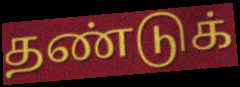
தண்டுக்